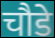
चौडे